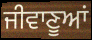
ਜੀਵਾਣੂਆਂ